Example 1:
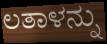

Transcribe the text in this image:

ಲತಾಳನ್ನು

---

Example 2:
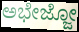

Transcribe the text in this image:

ಅಭೇಜ್ಜೋ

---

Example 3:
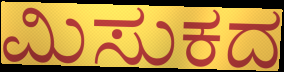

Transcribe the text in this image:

ಮಿಸುಕದ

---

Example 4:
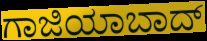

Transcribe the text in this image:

ಗಾಜಿಯಾಬಾದ್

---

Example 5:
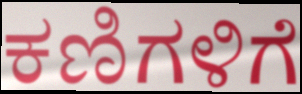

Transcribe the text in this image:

ಕಣಿಗಳಿಗೆ